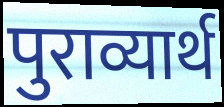
पुराव्यार्थ